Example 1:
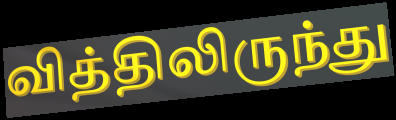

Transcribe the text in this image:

வித்திலிருந்து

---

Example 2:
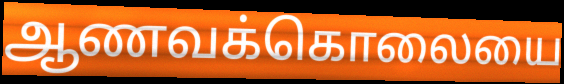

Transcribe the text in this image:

ஆணவக்கொலையை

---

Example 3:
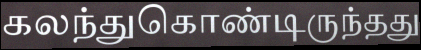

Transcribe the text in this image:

கலந்துகொண்டிருந்தது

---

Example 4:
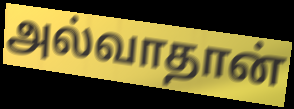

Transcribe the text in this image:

அல்வாதான்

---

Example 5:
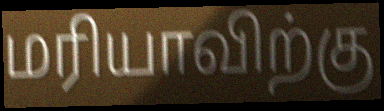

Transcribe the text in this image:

மரியாவிற்கு